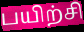
பயிற்சி